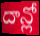
దాన్లో